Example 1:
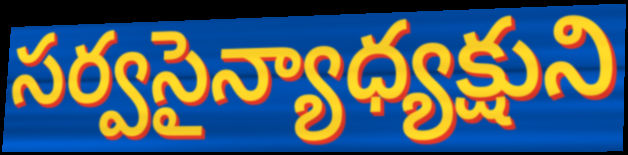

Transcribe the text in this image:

సర్వసైన్యాధ్యక్షుని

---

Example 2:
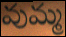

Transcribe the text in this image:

వుమ్మ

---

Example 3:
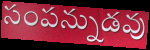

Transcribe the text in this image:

సంపన్నుడవు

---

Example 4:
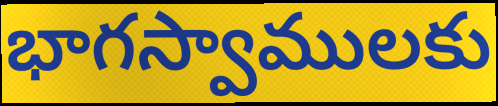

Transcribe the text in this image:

భాగస్వాములకు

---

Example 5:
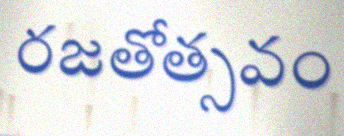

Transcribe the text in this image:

రజతోత్సవం